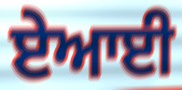
ਏਆਈ